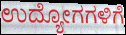
ಉದ್ಯೋಗಗಳಿಗೆ